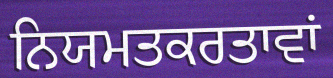
ਨਿਯਮਤਕਰਤਾਵਾਂ